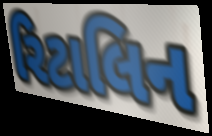
રિટાલિન